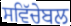
ਸਵਿੱਚੇਬਲ